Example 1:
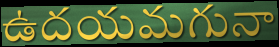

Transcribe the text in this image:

ఉదయమగునా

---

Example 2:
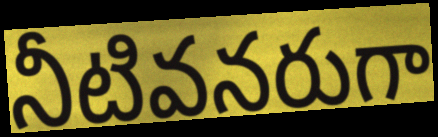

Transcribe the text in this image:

నీటివనరుగా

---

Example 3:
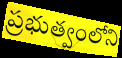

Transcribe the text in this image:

ప్రభుత్వంలోని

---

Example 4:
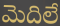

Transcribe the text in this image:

మెదిలే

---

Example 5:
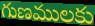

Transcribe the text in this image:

గుణములకు